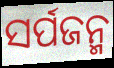
ସର୍ପଜନ୍ମ